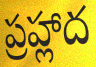
ప్రహ్లాద